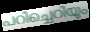
പറിച്ചെറിയും